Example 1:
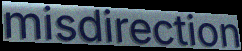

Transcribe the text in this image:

misdirection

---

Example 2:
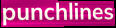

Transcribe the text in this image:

punchlines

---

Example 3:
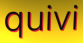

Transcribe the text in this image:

quivi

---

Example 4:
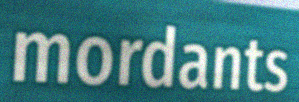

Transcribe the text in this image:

mordants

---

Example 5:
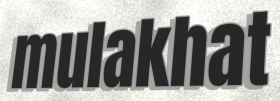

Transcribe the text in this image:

mulakhat